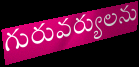
గురువర్యులను